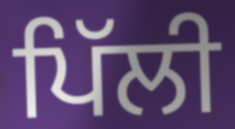
ਪਿੱਲੀ